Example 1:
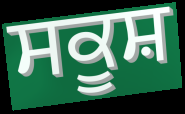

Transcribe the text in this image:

ਸਕੂਸ਼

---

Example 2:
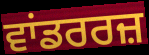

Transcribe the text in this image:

ਵਾਂਡਰਰਜ਼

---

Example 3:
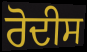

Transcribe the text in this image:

ਰੋਦੀਸ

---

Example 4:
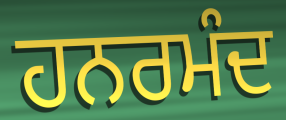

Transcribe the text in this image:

ਹਨਰਮੰਦ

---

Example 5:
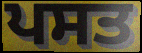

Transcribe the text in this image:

ਪਸਤ